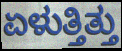
ಏಳುತ್ತಿತ್ತು